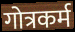
गोत्रकर्म